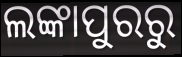
ଲଙ୍କାପୁରରୁ